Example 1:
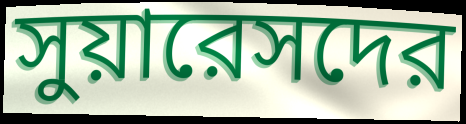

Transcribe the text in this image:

সুয়ারেসদের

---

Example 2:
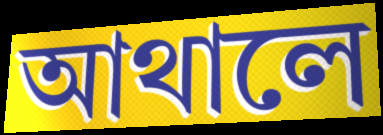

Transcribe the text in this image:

আথালে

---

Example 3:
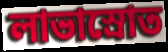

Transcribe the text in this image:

লাভাস্রোত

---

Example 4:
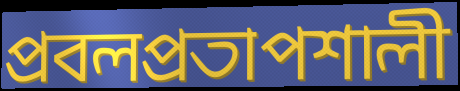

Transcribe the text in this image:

প্রবলপ্রতাপশালী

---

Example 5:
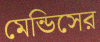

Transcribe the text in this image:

মেন্ডিসের